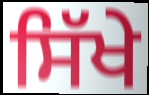
ਸਿੱਖੇ